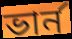
ভার্ন